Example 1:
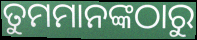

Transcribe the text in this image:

ତୁମମାନଙ୍କଠାରୁ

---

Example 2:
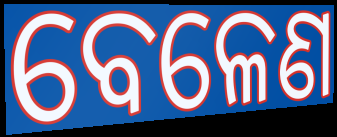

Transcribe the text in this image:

ବେଳେଣ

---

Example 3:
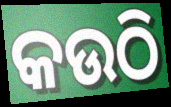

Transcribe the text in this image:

କଉଠି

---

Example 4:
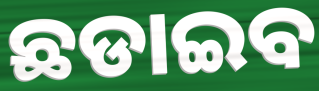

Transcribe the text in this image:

ଛଡାଇବ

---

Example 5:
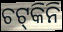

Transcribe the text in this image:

ଚଟ୍‍କିନି